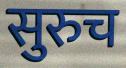
सुरुच